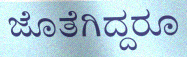
ಜೊತೆಗಿದ್ದರೂ